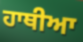
ਹਾਥੀਆ